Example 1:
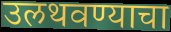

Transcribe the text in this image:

उलथवण्याचा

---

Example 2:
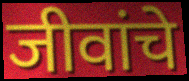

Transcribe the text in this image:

जीवांचे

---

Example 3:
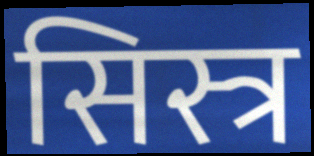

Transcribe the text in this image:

सिस्त्र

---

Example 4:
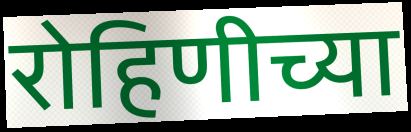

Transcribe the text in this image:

रोहिणीच्या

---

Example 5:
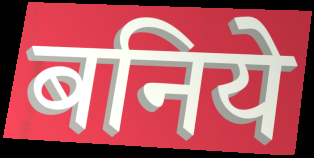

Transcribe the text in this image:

बनिये